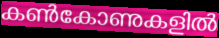
കൺകോണുകളിൽ